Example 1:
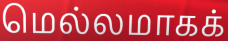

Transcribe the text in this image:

மெல்லமாகக்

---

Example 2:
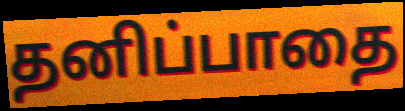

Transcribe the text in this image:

தனிப்பாதை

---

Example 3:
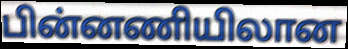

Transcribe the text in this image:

பின்னணியிலான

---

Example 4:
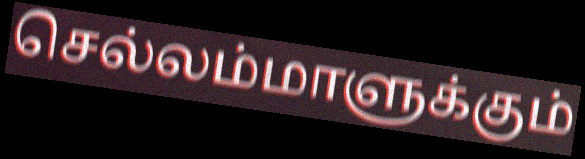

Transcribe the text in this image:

செல்லம்மாளுக்கும்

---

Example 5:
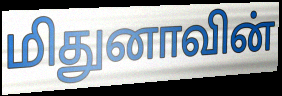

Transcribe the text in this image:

மிதுனாவின்